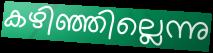
കഴിഞ്ഞില്ലെന്നു